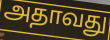
அதாவது